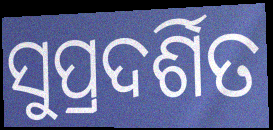
ସୁପ୍ରଦର୍ଶିତ